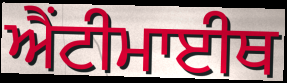
ਐਂਟੀਮਾਈਥ